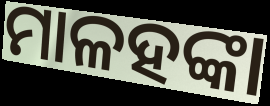
ମାଳହଙ୍କା